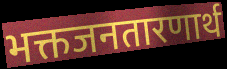
भक्तजनतारणार्थ